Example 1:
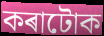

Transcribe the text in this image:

কৰাটোক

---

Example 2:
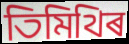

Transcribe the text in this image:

তিমিথিৰ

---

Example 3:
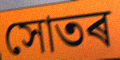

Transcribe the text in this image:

সোতৰ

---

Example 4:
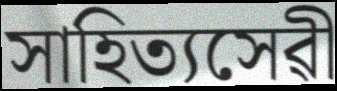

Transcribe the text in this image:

সাহিত্যসেৱী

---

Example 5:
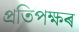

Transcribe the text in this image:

প্ৰতিপক্ষৰ